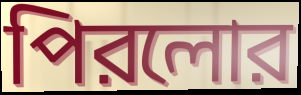
পিরলোর